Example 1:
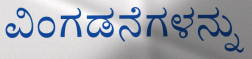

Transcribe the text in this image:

ವಿಂಗಡನೆಗಳನ್ನು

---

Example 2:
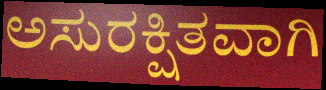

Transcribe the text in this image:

ಅಸುರಕ್ಷಿತವಾಗಿ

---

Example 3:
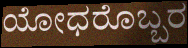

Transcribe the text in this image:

ಯೋಧರೊಬ್ಬರ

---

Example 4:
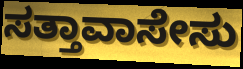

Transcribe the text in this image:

ಸತ್ತಾವಾಸೇಸು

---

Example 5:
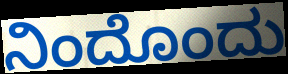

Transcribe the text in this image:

ನಿಂದೊಂದು